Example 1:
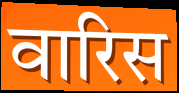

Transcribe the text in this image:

वारिस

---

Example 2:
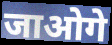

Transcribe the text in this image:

जाओगे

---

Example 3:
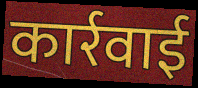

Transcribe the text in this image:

कार्रवाई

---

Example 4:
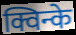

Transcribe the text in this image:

क्विन्के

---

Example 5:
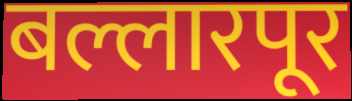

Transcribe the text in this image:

बल्लारपूर